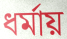
ধর্মায়